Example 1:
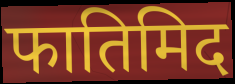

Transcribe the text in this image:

फातिमिद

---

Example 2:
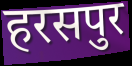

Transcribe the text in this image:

हरसपुर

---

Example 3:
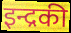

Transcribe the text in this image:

इन्द्रकी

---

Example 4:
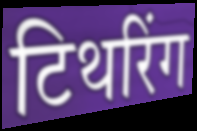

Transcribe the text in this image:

टिथरिंग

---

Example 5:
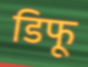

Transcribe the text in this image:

डिफू